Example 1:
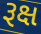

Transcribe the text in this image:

રૂક્ષ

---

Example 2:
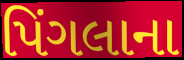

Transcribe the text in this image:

પિંગલાના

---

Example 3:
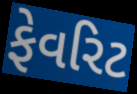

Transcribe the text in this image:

ફેવરિટ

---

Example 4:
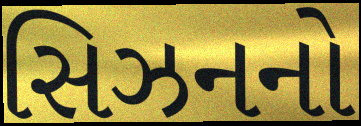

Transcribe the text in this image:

સિઝનનો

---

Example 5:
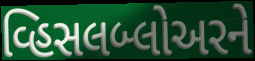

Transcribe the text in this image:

વ્હિસલબ્લોઅરને